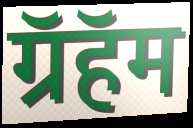
ग्रॅहॅम